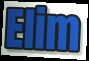
Elim